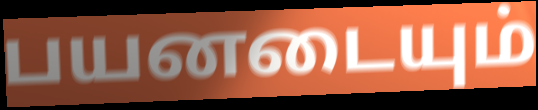
பயனடையும்